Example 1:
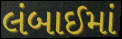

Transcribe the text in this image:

લંબાઈમાં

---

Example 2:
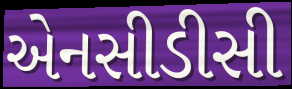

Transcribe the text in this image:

એનસીડીસી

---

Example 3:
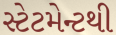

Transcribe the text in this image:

સ્ટેટમેન્ટથી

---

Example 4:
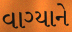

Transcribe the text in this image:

વાગ્યાને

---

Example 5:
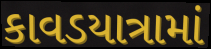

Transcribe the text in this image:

કાવડયાત્રામાં